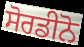
ਸੋਰਡੀਨੋ